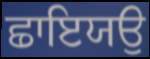
ਛਾਇਯਉ